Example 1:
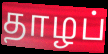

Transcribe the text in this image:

தாழப்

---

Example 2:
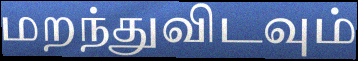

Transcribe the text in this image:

மறந்துவிடவும்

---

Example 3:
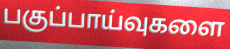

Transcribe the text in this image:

பகுப்பாய்வுகளை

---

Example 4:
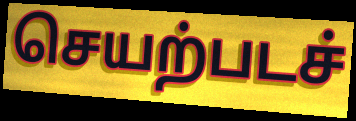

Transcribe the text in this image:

செயற்படச்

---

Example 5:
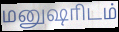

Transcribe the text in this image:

மனுஷரிடம்